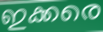
ഇക്കരെ